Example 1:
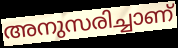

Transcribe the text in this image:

അനുസരിച്ചാണ്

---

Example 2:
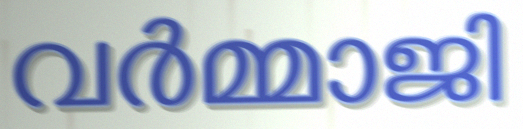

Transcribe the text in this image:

വർമ്മാജി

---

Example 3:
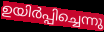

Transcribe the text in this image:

ഉയിർപ്പിച്ചെന്നു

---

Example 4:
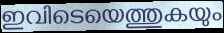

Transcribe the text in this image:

ഇവിടെയെത്തുകയും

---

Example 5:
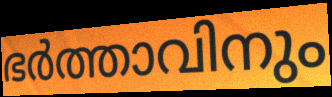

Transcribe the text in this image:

ഭർത്താവിനും